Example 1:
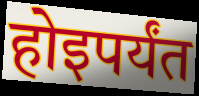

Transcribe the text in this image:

होइपर्यंत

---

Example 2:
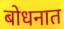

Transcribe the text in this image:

बोधनात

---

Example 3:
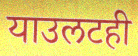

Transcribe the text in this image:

याउलटही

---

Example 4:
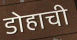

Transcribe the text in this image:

डोहाची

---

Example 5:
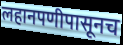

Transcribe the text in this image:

लहानपणीपासूनच